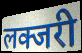
लक्जरी